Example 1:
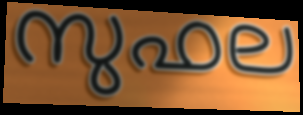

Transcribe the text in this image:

സുഫല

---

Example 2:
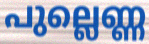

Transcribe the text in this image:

പുല്ലെണ്ണ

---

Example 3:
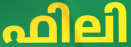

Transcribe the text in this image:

ഫിലി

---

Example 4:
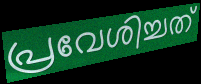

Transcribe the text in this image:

പ്രവേശിച്ചത്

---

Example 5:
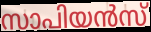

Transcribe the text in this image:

സാപിയൻസ്